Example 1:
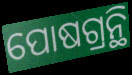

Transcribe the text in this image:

ପୋଷଗ୍ରନ୍ଥି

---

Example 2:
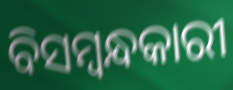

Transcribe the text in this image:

ବିସମ୍ବନ୍ଧକାରୀ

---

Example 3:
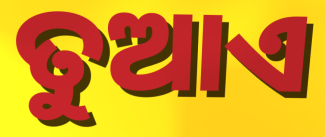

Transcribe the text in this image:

ତୁଆଏ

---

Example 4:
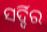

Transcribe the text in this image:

ସର୍ଦ୍ଦିର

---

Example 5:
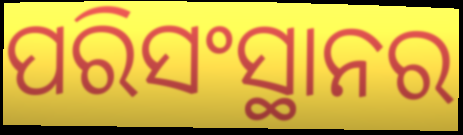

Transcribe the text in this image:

ପରିସଂସ୍ଥାନର